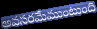
అవసరమేముంటుంది